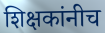
शिक्षकांनीच